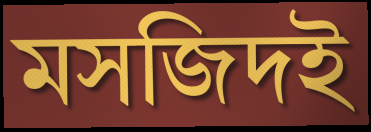
মসজিদই